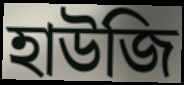
হাউজি